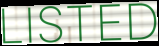
LISTED